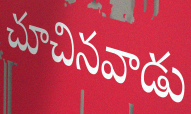
చూచినవాడు